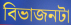
বিভাজনটা